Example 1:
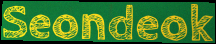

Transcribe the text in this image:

Seondeok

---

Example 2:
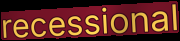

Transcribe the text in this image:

recessional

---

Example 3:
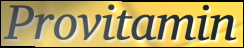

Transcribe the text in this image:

Provitamin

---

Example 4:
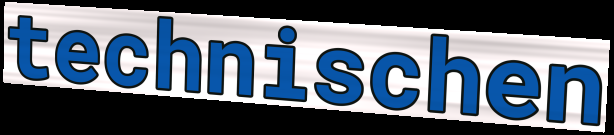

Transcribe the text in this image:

technischen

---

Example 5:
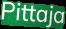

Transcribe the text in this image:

Pittaja